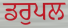
ਡਰੁਪਲ